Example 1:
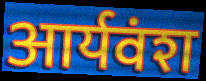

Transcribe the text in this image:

आर्यवंश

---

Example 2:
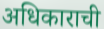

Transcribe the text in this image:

अधिकाराची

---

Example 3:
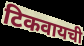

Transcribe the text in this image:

टिकवायची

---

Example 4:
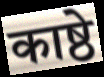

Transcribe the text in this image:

काष्ठे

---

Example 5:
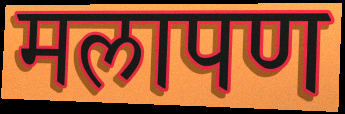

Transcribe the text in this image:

मलापण